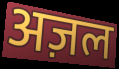
अज़ल